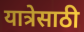
यात्रेसाठी